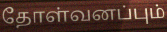
தோள்வனப்பும்